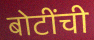
बोटींची